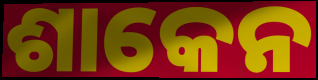
ଶାକେନ